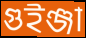
গুইঞ্জা